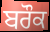
ਬਰੌਕ